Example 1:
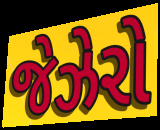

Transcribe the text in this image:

જેઝેરો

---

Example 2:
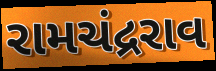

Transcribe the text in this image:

રામચંદ્રરાવ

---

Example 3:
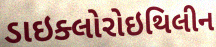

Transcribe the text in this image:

ડાઇક્લોરોઇથિલીન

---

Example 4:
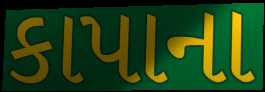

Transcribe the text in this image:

કાપાના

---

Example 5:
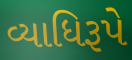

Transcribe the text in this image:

વ્યાધિરૂપે